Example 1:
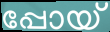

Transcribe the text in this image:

പ്പോയ്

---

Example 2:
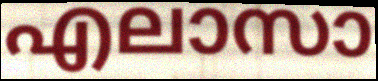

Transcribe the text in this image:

എലാസാ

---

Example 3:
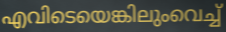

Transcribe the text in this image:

എവിടെയെങ്കിലുംവെച്ച്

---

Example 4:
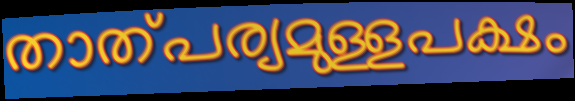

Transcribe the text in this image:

താത്പര്യമുള്ളപക്ഷം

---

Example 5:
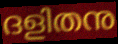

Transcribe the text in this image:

ദളിതനു